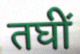
तघीं